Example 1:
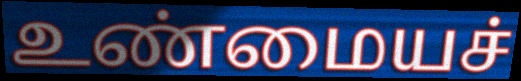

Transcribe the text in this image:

உண்மையச்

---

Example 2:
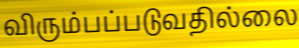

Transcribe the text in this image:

விரும்பப்படுவதில்லை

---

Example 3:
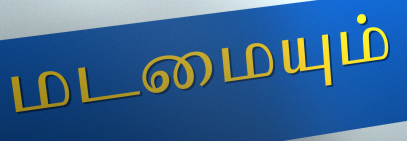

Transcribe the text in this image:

மடமையும்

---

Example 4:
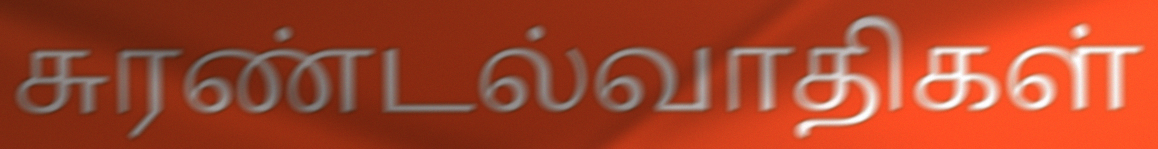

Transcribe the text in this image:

சுரண்டல்வாதிகள்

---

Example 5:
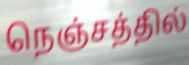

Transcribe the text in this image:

நெஞ்சத்தில்